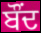
ਬੌਂਦ